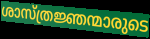
ശാസ്ത്രജ്ഞന്മാരുടെ